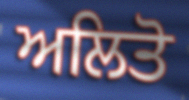
ਅਲਿਤੋ